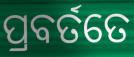
ପ୍ରବର୍ତତେ